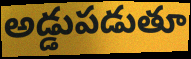
అడ్డుపడుతూ